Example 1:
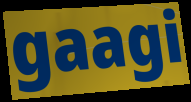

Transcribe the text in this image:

gaagi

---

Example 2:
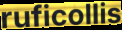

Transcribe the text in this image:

ruficollis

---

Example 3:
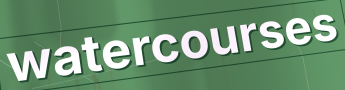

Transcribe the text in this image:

watercourses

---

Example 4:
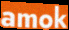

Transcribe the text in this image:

amok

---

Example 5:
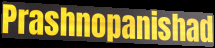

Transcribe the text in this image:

Prashnopanishad